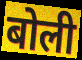
बोली